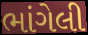
ભાંગેલી